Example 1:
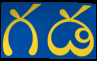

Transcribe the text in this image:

గడ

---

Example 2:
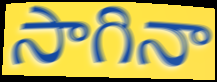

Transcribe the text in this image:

సాగినా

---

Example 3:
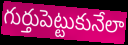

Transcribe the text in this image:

గుర్తుపెట్టుకునేలా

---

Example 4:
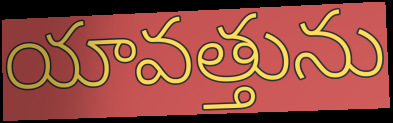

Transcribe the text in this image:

యావత్తును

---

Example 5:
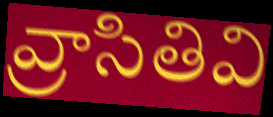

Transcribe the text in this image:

వ్రాసితివి